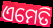
ଏମେତି